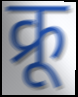
क्रू